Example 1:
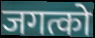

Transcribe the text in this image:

जगत्को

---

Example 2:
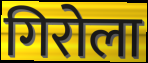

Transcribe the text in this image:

गिरोला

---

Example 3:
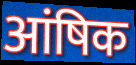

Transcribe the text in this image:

आंषिक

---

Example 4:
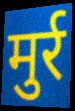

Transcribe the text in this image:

मुर्र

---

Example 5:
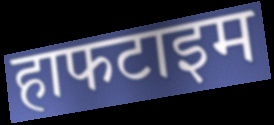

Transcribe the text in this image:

हाफटाइम